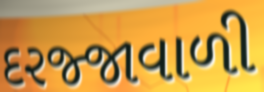
દરજ્જાવાળી